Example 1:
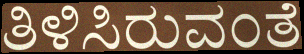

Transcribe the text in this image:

ತಿಳಿಸಿರುವಂತೆ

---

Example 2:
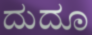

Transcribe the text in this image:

ದುದೂ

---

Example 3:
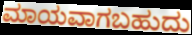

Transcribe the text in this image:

ಮಾಯವಾಗಬಹುದು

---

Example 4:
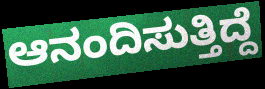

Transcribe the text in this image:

ಆನಂದಿಸುತ್ತಿದ್ದೆ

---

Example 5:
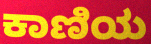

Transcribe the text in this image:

ಕಾಣಿಯ